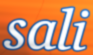
sali